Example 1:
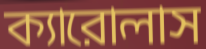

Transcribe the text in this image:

ক্যারোলাস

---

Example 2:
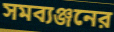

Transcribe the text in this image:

সমব্যঞ্জনের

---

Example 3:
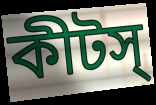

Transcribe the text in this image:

কীটস্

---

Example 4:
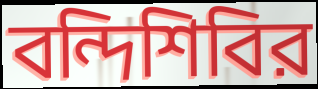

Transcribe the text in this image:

বন্দিশিবির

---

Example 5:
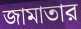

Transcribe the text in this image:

জামাতার